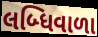
લબ્ધિવાળા